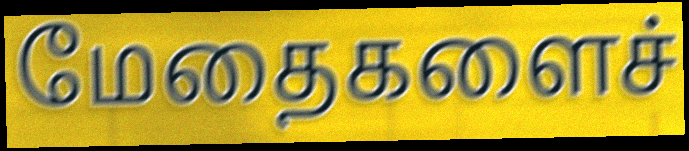
மேதைகளைச்